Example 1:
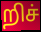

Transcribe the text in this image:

றிச்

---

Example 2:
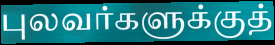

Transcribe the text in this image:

புலவர்களுக்குத்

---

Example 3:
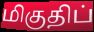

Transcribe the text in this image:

மிகுதிப்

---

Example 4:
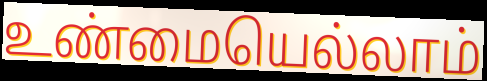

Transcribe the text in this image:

உண்மையெல்லாம்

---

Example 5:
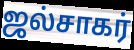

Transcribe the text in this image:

ஜல்சாகர்